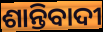
ଶାନ୍ତିବାଦୀ